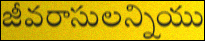
జీవరాసులన్నియు